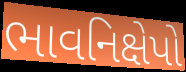
ભાવનિક્ષેપો